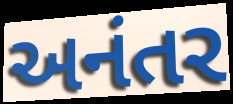
અનંતર